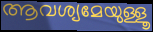
ആവശ്യമേയുള്ളൂ